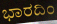
ಭಾರದಿಂ